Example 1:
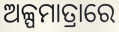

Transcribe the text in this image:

ଅଳ୍ପମାତ୍ରାରେ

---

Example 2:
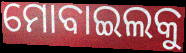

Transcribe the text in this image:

ମୋବାଇଲକୁ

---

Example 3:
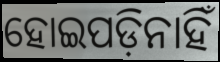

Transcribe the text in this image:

ହୋଇପଡ଼ିନାହିଁ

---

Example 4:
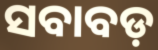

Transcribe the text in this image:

ସବାବଡ଼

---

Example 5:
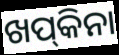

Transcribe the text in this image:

ଖପ୍‌କିନା